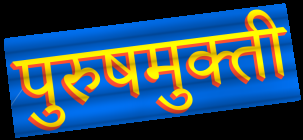
पुरुषमुक्ती